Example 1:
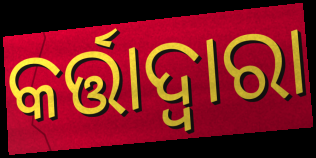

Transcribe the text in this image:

କର୍ତ୍ତାଦ୍ଵାରା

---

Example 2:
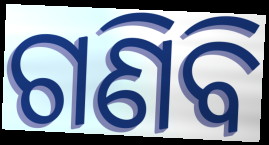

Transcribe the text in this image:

ଗଣିବି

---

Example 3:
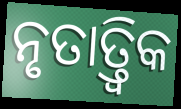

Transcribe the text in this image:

ନୃତାତ୍ତ୍ବିକ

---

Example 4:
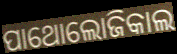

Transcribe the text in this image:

ପାଥୋଲୋଜିକାଲ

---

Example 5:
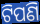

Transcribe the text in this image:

ଟିପଣି